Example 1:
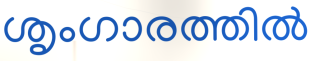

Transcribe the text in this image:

ശൃംഗാരത്തിൽ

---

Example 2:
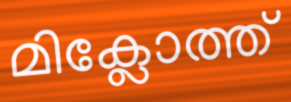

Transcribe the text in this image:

മിക്ലോത്ത്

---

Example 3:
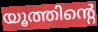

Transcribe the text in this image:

യൂത്തിന്റെ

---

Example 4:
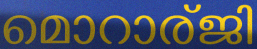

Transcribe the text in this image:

മൊറാര്ജി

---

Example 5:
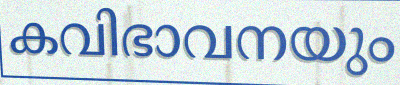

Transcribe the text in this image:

കവിഭാവനയും